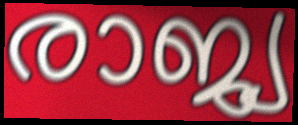
രാജ്യ